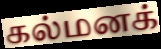
கல்மனக்